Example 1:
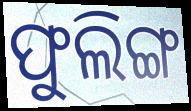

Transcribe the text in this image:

ଫୁଲିଙ୍ଗ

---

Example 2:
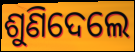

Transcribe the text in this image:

ଶୁଣିଦେଲେ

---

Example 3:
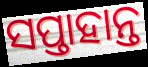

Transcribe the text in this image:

ସପ୍ତାହାନ୍ତ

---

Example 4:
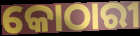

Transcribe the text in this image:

କୋଠାରୀ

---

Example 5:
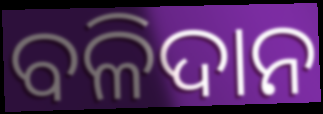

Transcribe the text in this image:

ବଳିଦାନ